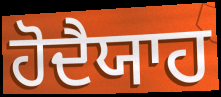
ਹੋਦੈਯਾਹ